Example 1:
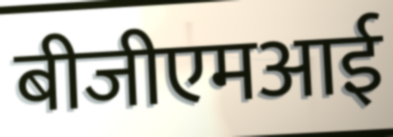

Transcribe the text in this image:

बीजीएमआई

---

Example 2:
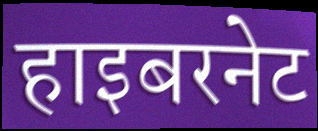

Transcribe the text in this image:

हाइबरनेट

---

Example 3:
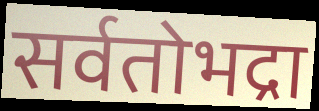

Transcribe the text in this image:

सर्वतोभद्रा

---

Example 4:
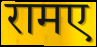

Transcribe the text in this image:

रामए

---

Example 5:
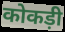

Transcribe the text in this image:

कोकड़ी